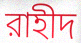
রাহীদ